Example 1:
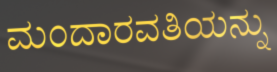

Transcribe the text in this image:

ಮಂದಾರವತಿಯನ್ನು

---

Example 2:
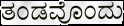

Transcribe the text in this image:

ತಂಡವೊಂದು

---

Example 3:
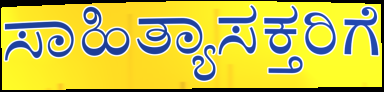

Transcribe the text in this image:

ಸಾಹಿತ್ಯಾಸಕ್ತರಿಗೆ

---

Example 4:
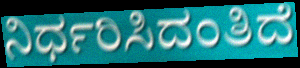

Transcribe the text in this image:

ನಿರ್ಧರಿಸಿದಂತಿದೆ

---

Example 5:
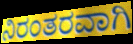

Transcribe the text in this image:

ನಿರಂತರವಾಗಿ